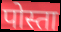
पोस्ता